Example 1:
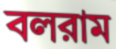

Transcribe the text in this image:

বলরাম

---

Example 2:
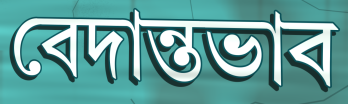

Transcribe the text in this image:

বেদান্তভাব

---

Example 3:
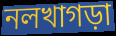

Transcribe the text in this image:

নলখাগড়া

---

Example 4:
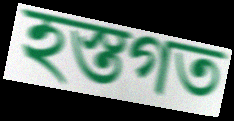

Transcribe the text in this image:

হস্তগত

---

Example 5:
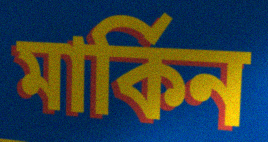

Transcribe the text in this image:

মার্কিন